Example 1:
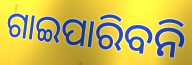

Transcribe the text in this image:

ଗାଇପାରିବନି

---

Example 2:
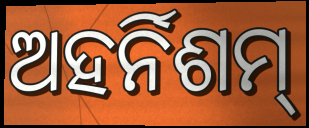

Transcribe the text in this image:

ଅହର୍ନିଶମ୍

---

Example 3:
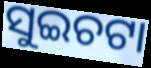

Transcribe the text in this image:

ସୁଇଚଟା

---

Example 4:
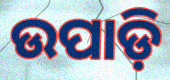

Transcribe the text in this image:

ଉପାଡ଼ି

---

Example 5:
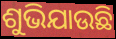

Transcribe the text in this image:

ଶୁଭିଯାଉଛି